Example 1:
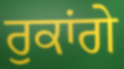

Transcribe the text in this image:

ਰੁਕਾਂਗੇ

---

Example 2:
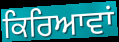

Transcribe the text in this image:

ਕਿਰਿਆਵਾਂ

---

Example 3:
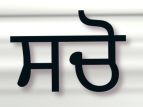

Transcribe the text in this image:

ਸਚੋ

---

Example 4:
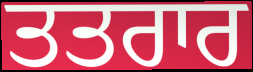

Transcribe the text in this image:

ਤਤਰਾਰ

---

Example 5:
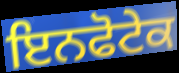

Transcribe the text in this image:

ਇਨਫੋਟੇਕ